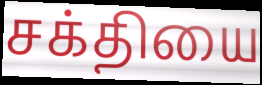
சக்தியை